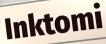
Inktomi